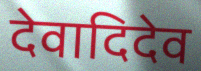
देवादिदेव